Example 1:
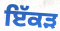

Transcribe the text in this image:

ਇੱਕੜ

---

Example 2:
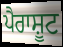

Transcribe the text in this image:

ਪੈਰਾਸ਼ੂਟ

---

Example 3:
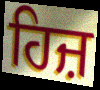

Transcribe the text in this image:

ਹਿਜ਼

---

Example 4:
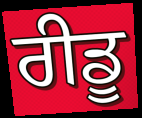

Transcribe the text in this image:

ਰੀਡੂ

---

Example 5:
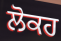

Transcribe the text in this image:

ਲੋਕਹ